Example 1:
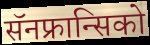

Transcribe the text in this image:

सॅनफ्रान्सिको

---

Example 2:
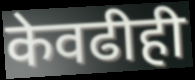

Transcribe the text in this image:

केवढीही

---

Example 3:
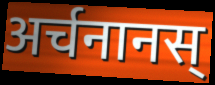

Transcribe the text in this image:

अर्चनानस्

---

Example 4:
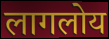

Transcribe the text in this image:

लागलोय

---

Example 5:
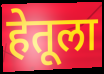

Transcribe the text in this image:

हेतूला